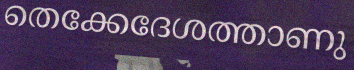
തെക്കേദേശത്താണു